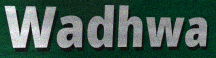
Wadhwa